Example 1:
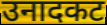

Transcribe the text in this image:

उनादकट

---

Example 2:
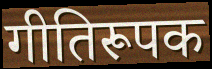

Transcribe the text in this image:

गीतिरूपक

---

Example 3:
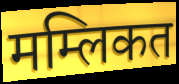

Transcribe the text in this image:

मम्लिकत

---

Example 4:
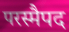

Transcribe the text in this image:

परस्मैपद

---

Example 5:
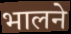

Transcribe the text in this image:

भालने